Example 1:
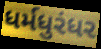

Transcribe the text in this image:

ધર્મધુરંધર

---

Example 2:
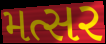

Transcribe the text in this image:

મત્સર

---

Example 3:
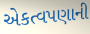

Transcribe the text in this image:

એકત્વપણાની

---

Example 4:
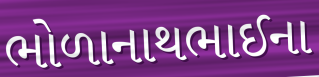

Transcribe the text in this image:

ભોળાનાથભાઈના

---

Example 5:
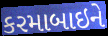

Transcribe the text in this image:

કરમાબાઇને